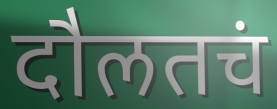
दौलतचं